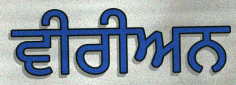
ਵੀਰੀਅਨ